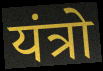
यंत्रो